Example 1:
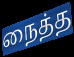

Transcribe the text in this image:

நைத்த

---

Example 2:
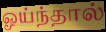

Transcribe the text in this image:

ஓய்ந்தால்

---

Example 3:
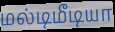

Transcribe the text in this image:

மல்டிமீடியா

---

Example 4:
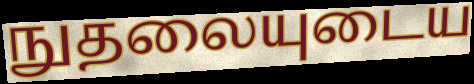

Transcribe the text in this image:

நுதலையுடைய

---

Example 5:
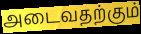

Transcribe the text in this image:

அடைவதற்கும்